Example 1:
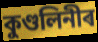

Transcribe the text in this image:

কুণ্ডলিনীৰ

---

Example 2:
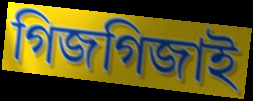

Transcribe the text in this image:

গিজগিজাই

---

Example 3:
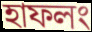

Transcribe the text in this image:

হাফলং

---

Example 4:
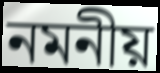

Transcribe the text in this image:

নমনীয়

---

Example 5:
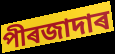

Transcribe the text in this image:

পীৰজাদাৰ